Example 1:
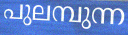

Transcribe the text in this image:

പുലമ്പുന്ന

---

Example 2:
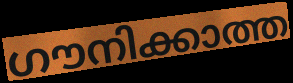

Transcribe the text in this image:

ഗൗനിക്കാത്ത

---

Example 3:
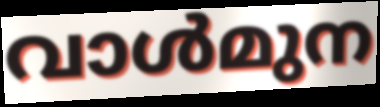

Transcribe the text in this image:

വാൾമുന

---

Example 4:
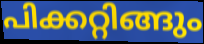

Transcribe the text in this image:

പിക്കറ്റിങ്ങും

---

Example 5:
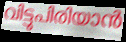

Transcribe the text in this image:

വിട്ടുപിരിയാൻ